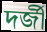
দৰ্জী